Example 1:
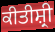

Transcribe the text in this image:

ਕੀਤੀਸ਼੍ਰੀ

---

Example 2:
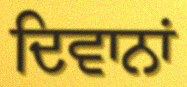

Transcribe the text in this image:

ਦਿਵਾਨਾਂ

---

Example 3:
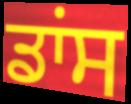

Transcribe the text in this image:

ਡਾਂਸ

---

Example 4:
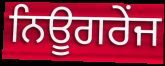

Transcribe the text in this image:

ਨਿਊਗਰੇਂਜ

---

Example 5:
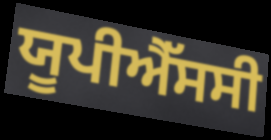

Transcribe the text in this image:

ਯੂਪੀਐੱਸਸੀ